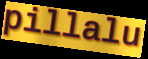
pillalu